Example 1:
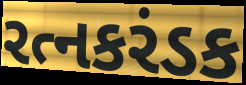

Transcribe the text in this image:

રત્નકરંડક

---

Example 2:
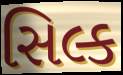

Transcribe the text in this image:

સિલ્ક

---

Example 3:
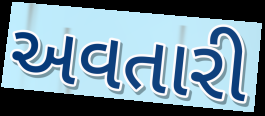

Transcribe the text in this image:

અવતારી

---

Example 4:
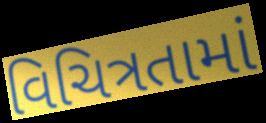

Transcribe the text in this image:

વિચિત્રતામાં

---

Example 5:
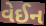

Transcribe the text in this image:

વેઈન